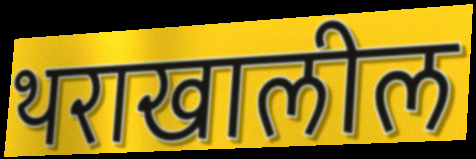
थराखालील